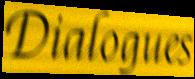
Dialogues